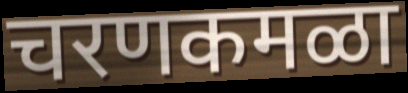
चरणकमळा